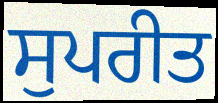
ਸੁਪਰੀਤ